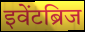
इवेंटब्रिज